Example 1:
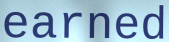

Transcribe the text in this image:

earned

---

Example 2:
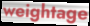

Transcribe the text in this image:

weightage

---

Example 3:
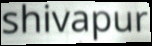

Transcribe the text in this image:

shivapur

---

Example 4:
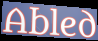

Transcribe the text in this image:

Abled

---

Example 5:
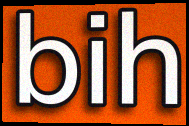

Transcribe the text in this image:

bih